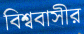
বিশ্ববাসীর